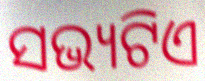
ସଭ୍ୟଟିଏ